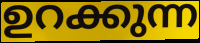
ഉറക്കുന്ന